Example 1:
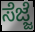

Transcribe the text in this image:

ಸೆಜ್ಜೆ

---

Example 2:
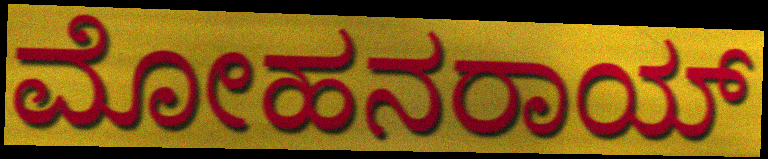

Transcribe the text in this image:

ಮೋಹನರಾಯ್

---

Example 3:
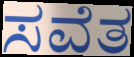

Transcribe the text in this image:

ಸವೆತ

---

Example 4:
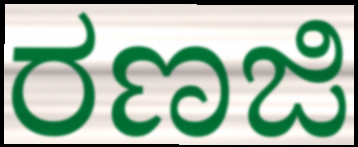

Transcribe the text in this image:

ರಣಜಿ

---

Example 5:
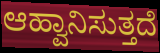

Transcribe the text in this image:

ಆಹ್ವಾನಿಸುತ್ತದೆ